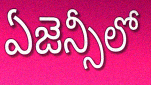
ఏజెన్సీలో